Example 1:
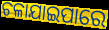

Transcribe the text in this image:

ଚଳାଯାଇପାରେ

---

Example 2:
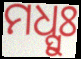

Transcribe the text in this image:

ମଧ୍ସୁଃ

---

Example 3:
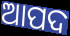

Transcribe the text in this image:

ଆପଦ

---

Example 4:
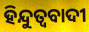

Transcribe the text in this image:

ହିନ୍ଦୁତ୍ବବାଦୀ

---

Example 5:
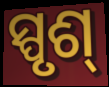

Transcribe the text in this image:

ସ୍ପୃଶ୍